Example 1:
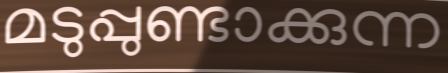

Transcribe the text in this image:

മടുപ്പുണ്ടാക്കുന്ന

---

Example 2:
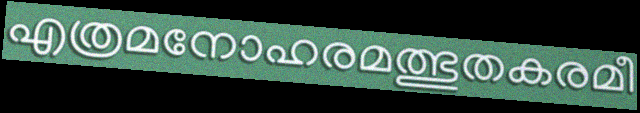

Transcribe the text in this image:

എത്രമനോഹരമത്ഭുതകരമീ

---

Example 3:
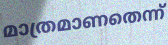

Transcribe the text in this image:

മാത്രമാണതെന്ന്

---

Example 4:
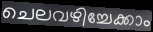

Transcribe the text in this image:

ചെലവഴിച്ചേക്കാം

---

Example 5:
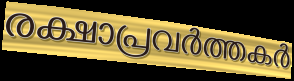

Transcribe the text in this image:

രക്ഷാപ്രവർത്തകർ